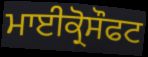
ਮਾਈਕ੍ਰੋਸੌਫਟ